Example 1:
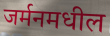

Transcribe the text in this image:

जर्मनमधील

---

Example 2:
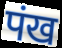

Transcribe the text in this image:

पंख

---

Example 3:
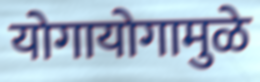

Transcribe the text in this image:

योगायोगामुळे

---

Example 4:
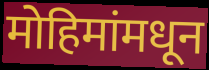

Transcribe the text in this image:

मोहिमांमधून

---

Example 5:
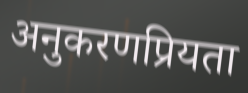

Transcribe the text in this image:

अनुकरणप्रियता